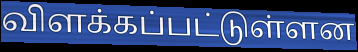
விளக்கப்பட்டுள்ளன